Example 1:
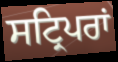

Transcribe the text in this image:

ਸਟ੍ਰਿਪਰਾਂ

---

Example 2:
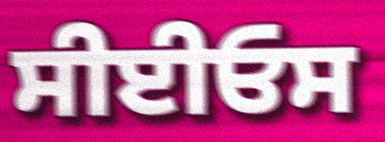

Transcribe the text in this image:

ਸੀਈਓਸ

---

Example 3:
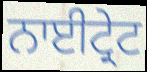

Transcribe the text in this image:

ਨਾਈਟ੍ਰੇਟ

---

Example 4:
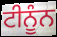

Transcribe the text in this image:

ਟੀਨੂੰਨ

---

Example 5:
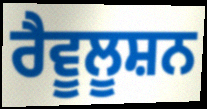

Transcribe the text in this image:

ਰੈਵੂਲੂਸ਼ਨ